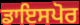
ਡਾਇਸਪੋਰ